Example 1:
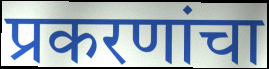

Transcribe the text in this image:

प्रकरणांचा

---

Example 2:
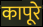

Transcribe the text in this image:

कापूरे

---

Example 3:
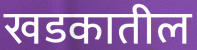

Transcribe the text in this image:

खडकातील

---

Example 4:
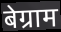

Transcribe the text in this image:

बेग्राम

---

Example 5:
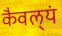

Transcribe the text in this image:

कैवल्यं